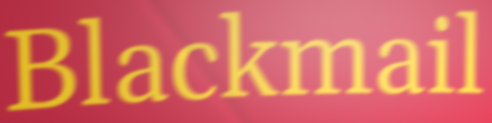
Blackmail